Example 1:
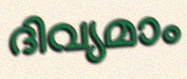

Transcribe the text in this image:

ദിവ്യമാം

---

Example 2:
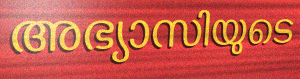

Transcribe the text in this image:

അഭ്യാസിയുടെ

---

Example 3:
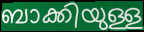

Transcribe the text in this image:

ബാക്കിയുള്ള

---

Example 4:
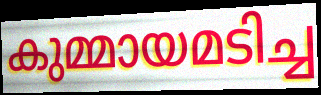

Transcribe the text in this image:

കുമ്മായമടിച്ച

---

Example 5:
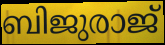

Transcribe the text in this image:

ബിജുരാജ്